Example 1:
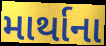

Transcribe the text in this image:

માર્થાના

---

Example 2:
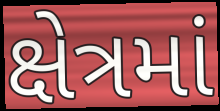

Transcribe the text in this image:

ક્ષેત્રમાં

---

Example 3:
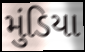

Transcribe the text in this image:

મુંડિયા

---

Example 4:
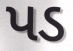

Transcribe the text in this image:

પડ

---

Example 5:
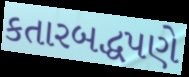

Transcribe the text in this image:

કતારબદ્ધપણે